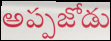
అప్పజోడు